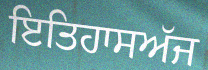
ਇਤਿਹਾਸਅੱਜ